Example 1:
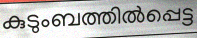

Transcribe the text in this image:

കുടുംബത്തിൽപ്പെട്ട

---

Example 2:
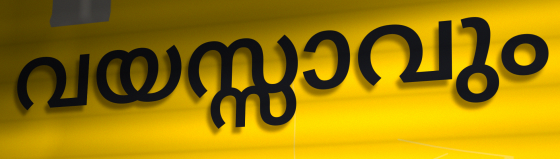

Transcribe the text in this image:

വയസ്സാവും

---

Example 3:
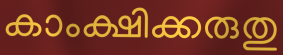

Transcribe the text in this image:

കാംക്ഷിക്കരുതു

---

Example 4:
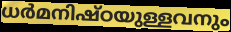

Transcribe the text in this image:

ധർമനിഷ്ഠയുള്ളവനും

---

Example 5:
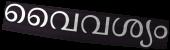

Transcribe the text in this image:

വൈവശ്യം